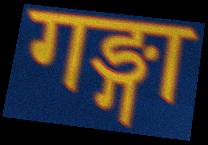
गङ्गा